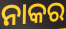
ନାକର